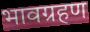
भावग्रहण